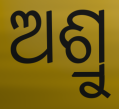
ଅଶ୍ରୁ